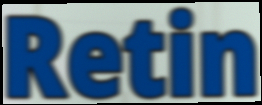
Retin